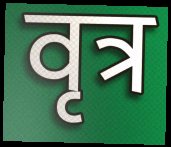
वृत्र